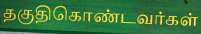
தகுதிகொண்டவர்கள்